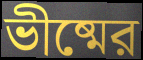
ভীষ্মের